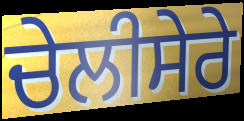
ਚੇਲੀਸੇਰੇ